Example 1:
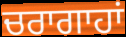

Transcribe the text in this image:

ਚਰਾਗਾਹਾਂ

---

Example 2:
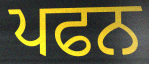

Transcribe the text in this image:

ਪਫਨ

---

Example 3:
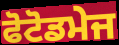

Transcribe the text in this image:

ਫੋਟੋਡਮੇਜ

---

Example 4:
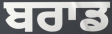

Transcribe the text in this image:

ਬਰਾਡ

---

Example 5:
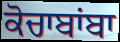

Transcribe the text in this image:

ਕੋਚਾਬਾਂਬਾ